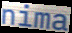
nima